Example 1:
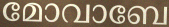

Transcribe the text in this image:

മോവാബേ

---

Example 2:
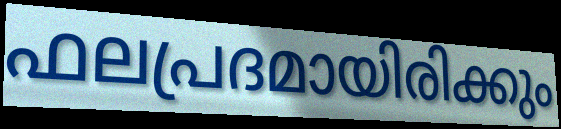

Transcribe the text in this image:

ഫലപ്രദമായിരിക്കും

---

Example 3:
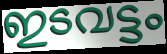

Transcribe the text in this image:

ഇടവട്ടം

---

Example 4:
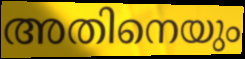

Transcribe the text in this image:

അതിനെയും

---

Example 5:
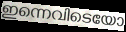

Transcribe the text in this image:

ഇന്നെവിടെയോ